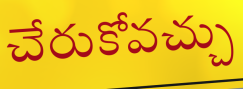
చేరుకోవచ్చు